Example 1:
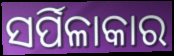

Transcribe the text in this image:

ସର୍ପିଳାକାର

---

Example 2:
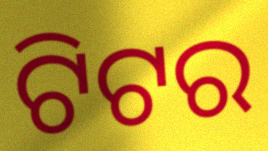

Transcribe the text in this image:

ଟିଟର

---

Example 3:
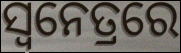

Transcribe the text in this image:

ସ୍ୱନେତ୍ରରେ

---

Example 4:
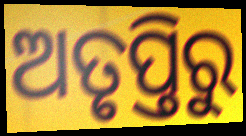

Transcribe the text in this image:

ଅତୃପ୍ତିରୁ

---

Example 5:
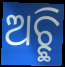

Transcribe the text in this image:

ଅଚ୍ଛି